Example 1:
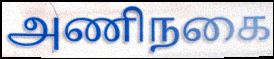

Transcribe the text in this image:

அணிநகை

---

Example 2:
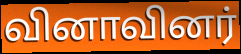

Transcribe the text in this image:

வினாவினர்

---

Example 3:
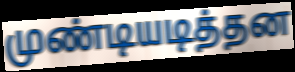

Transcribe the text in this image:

முண்டியடித்தன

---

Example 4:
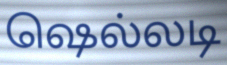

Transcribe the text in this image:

ஷெல்லடி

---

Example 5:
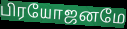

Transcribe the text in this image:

பிரயோஜனமே